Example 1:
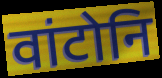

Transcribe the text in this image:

वांटोनि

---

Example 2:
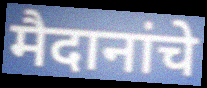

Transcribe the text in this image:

मैदानांचे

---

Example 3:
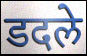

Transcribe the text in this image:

डदले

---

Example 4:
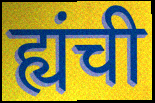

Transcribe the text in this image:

ह्यंची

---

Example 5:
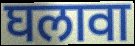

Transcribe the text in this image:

घलावा